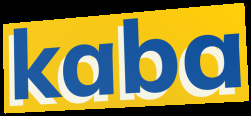
kaba